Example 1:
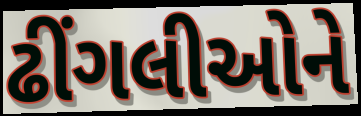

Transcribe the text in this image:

ઢીંગલીઓને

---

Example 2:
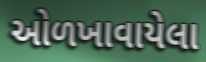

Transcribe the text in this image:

ઓળખાવાયેલા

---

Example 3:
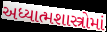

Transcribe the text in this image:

અધ્યાત્મશાસ્ત્રોમાં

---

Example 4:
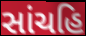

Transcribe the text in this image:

સાંચહિ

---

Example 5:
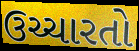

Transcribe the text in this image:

ઉચ્ચારતો